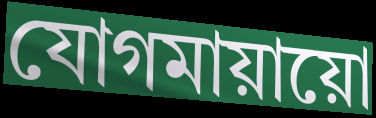
যোগমায়ায়ো